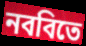
নববিতে